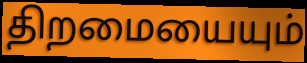
திறமையையும்